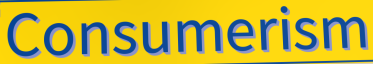
Consumerism